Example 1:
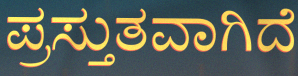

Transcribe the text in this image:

ಪ್ರಸ್ತುತವಾಗಿದೆ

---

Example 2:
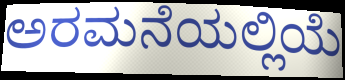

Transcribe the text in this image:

ಅರಮನೆಯಲ್ಲಿಯೆ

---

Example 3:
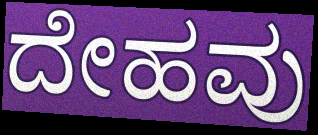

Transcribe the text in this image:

ದೇಹವು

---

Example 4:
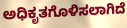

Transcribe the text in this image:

ಅಧಿಕೃತಗೊಳಿಸಲಾಗಿದೆ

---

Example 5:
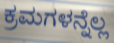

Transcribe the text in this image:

ಕ್ರಮಗಳನ್ನೆಲ್ಲ